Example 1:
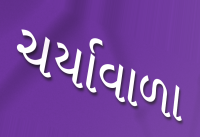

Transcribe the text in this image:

ચર્યાવાળા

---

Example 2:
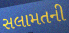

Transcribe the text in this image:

સલામતની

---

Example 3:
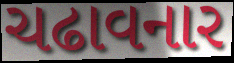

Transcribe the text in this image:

ચઢાવનાર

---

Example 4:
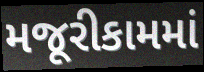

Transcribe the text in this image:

મજૂરીકામમાં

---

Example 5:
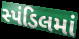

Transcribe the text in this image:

સ્પંડિલમાં